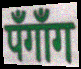
पँगाँग